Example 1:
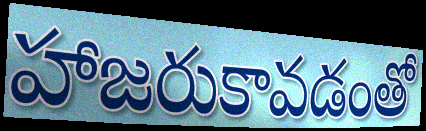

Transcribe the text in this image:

హాజరుకావడంతో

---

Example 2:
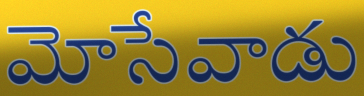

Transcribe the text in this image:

మోసేవాడు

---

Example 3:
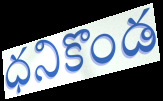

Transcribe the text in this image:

ధనికొండ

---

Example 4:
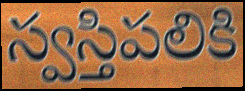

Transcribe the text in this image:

స్వస్తిపలికి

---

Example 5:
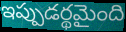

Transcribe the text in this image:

ఇప్పుడర్థమైంది